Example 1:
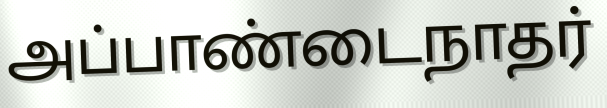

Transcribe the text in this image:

அப்பாண்டைநாதர்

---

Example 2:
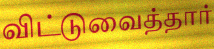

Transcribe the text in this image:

விட்டுவைத்தார்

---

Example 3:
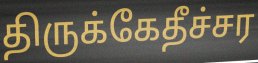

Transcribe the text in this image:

திருக்கேதீச்சர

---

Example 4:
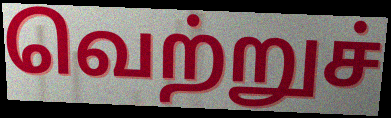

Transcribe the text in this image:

வெற்றுச்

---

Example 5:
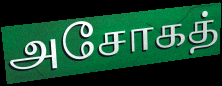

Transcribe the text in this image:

அசோகத்